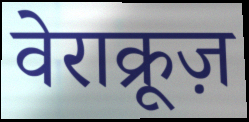
वेराक्रूज़